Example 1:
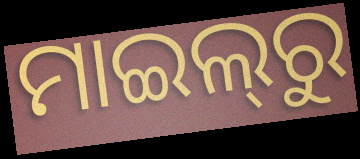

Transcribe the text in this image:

ମାଇଲ୍‌ରୁ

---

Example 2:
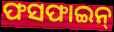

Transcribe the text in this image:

ଫସଫାଇନ୍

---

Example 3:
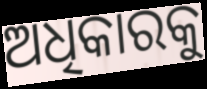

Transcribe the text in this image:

ଅଧିକାରକୁ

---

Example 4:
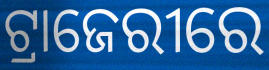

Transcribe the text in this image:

ଟ୍ରାଜେରୀରେ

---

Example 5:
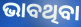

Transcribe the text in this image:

ଭାବଥିବା